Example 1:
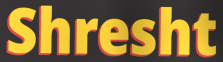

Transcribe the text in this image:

Shresht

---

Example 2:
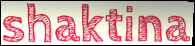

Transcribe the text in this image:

shaktina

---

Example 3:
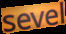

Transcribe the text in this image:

sevel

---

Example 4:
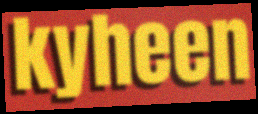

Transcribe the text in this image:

kyheen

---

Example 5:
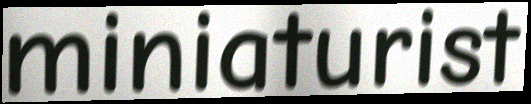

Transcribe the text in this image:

miniaturist